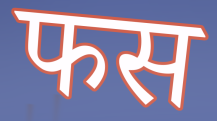
फस